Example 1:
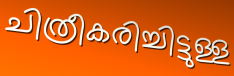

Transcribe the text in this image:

ചിത്രീകരിച്ചിട്ടുള്ള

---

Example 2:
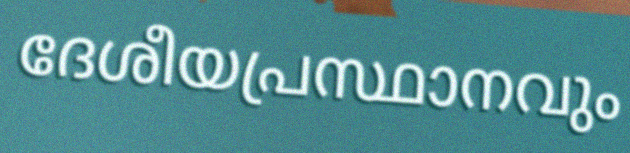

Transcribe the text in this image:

ദേശീയപ്രസ്ഥാനവും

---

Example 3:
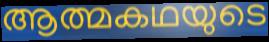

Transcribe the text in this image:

ആത്മകഥയുടെ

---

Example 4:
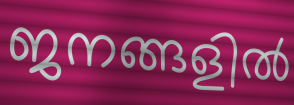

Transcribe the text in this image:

ജനങ്ങളിൽ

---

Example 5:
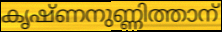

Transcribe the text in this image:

കൃഷ്ണനുണ്ണിത്താന്